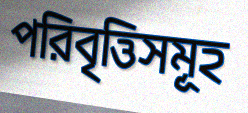
পরিবৃত্তিসমূহ